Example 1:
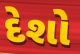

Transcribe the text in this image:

દેશો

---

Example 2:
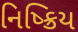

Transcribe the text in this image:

નિષ્ક્રિય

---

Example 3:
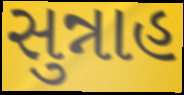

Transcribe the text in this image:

સુન્નાહ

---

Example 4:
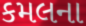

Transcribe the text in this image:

કમલના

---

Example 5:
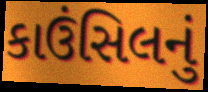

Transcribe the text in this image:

કાઉંસિલનું